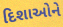
દિશાઓને